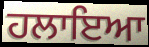
ਹਲਾਇਆ